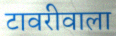
टावरीवाला